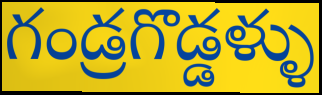
గండ్రగొడ్డళ్ళు